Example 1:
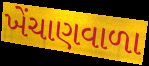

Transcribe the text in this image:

ખેંચાણવાળા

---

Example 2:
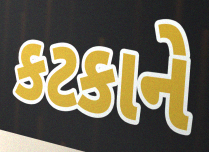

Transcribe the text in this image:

કટકાને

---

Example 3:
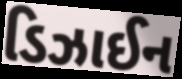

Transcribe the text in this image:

ડિઝાઈન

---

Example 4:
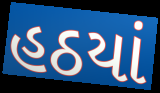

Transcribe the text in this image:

હઠયાં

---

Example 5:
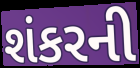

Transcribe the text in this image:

શંકરની